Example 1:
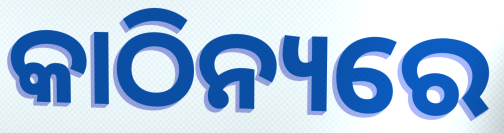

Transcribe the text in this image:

କାଠିନ୍ୟରେ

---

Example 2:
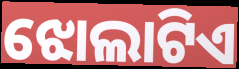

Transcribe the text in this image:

ଝୋଲାଟିଏ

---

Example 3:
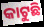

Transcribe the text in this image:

କାଟୁଛି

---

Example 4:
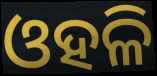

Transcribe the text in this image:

ଓହଳି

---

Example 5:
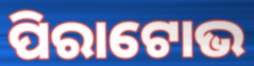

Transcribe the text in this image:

ପିରାଟୋଭ